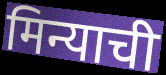
मिन्याची